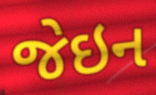
જેઇન